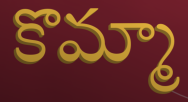
కొమ్మా